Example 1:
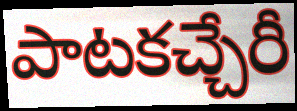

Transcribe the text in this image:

పాటకచ్చేరీ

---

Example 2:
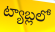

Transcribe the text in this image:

ట్యాబ్లలో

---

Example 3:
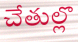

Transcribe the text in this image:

చేతుల్లొ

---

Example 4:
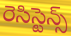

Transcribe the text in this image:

రెసిస్టెన్స్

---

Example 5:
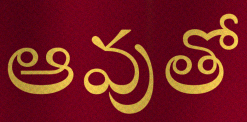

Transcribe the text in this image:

ఆవుతో